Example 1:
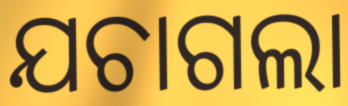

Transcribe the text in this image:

ଯଚାଗଲା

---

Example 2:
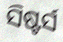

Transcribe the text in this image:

ସିଷ୍ଟର୍ସ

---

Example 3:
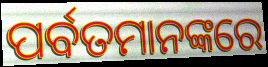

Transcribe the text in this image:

ପର୍ବତମାନଙ୍କରେ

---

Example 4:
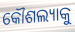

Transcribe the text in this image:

କୌଶଲ୍ୟାକୁ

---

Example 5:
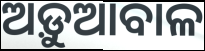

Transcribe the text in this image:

ଅଡ଼ୁଆବାଳ